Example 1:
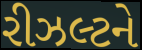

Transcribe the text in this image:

રીઝલ્ટને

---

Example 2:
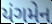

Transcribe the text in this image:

યંગમેન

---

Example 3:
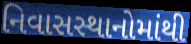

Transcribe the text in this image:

નિવાસસ્થાનોમાંથી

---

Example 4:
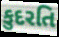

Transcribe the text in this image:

કુદરતિ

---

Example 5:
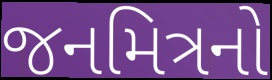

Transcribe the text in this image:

જનમિત્રનો